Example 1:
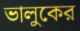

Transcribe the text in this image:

ভালুকের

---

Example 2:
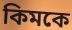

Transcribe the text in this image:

কিমকে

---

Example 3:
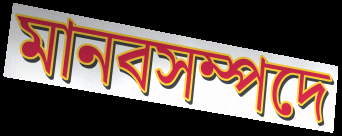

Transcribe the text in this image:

মানবসম্পদে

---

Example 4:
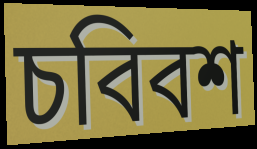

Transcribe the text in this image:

চবিবশ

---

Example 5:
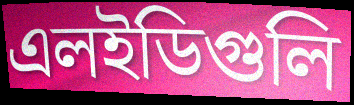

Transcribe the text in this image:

এলইডিগুলি